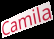
Camila